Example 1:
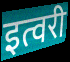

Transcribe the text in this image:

इत्वरी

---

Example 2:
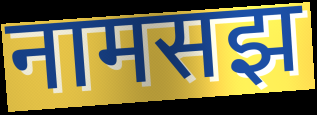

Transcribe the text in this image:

नामसझ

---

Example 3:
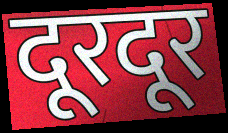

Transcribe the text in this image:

दूरदूर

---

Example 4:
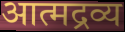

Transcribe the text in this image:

आत्मद्रव्य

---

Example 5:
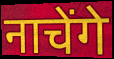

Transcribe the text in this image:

नाचेंगे